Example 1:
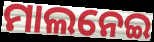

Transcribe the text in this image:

ମାଲନେଇ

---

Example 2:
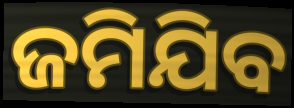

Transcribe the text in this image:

ଜମିଯିବ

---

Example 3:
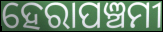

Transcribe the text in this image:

ହେରାପଞ୍ଚମୀ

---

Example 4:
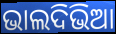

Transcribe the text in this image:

ଭାଲଦିଭିଆ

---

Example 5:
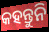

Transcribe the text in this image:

କହନ୍ତୁନି